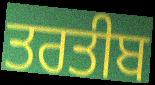
ਤਰਤੀਬ